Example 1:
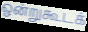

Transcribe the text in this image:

ஒன்றுகூடக்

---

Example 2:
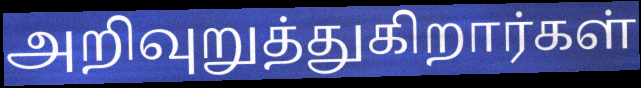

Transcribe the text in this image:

அறிவுறுத்துகிறார்கள்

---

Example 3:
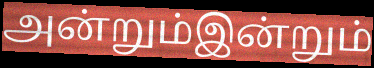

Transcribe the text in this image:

அன்றும்இன்றும்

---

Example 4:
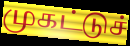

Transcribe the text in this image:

முகட்டுச்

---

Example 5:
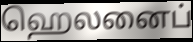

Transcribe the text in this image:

ஹெலனைப்